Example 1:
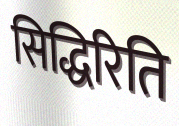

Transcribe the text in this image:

सिद्धिरिति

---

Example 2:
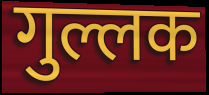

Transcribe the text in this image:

गुल्लक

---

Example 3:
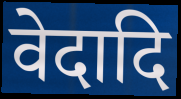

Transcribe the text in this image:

वेदादि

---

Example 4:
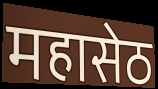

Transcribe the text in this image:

महासेठ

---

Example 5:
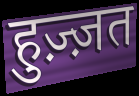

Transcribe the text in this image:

हुज़्ज़त